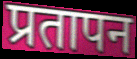
प्रतापन